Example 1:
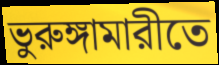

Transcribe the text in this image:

ভুরুঙ্গামারীতে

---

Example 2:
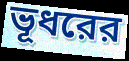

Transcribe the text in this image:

ভূধরের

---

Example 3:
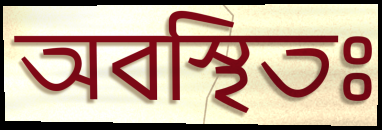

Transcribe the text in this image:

অবস্থিতঃ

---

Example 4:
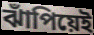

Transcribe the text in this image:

ঝাঁপিয়েই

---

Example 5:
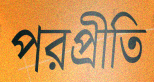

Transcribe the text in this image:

পরপ্রীতি